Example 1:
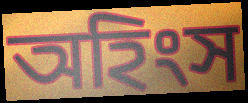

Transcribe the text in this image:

অহিংস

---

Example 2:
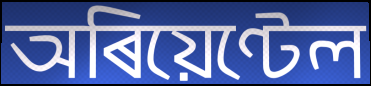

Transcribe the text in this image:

অৰিয়েণ্টেল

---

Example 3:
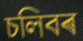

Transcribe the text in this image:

চলিবৰ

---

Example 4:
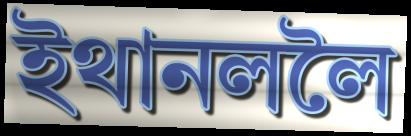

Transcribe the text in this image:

ইথানললৈ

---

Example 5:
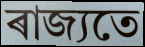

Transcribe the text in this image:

ৰাজ্যতে